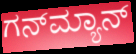
ಗನ್‌ಮ್ಯಾನ್